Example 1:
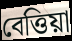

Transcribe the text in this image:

বেত্তিয়া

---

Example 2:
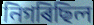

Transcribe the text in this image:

নিগৰিছিল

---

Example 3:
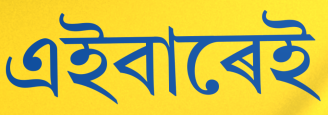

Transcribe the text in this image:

এইবাৰেই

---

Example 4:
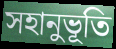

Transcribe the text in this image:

সহানুভূতি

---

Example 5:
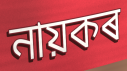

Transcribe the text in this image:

নায়কৰ